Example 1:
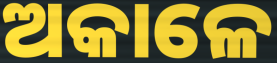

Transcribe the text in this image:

ଅକାଳେ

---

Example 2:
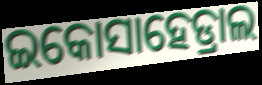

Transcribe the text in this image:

ଇକୋସାହେଡ୍ରାଲ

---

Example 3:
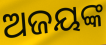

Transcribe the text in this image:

ଅଜୟଙ୍କ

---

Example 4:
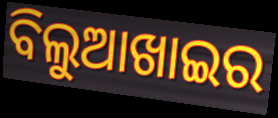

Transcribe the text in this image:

ବିଲୁଆଖାଇର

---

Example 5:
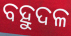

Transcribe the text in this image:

ବହୁଦଳ